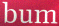
bum